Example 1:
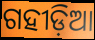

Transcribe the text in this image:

ଗହୀଡ଼ିଆ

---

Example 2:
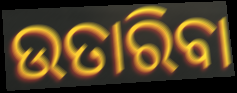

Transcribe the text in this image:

ଉତାରିବା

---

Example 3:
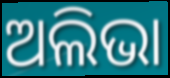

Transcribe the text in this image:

ଅଲିଭା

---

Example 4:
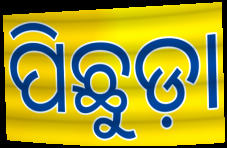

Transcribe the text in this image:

ପିଛୁଡ଼ା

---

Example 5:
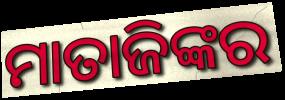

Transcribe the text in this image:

ମାତାଜିଙ୍କର